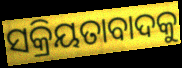
ସକ୍ରିୟତାବାଦକୁ